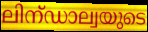
ലിന്ഡാല്വയുടെ